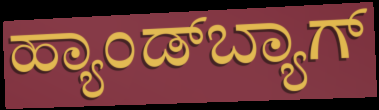
ಹ್ಯಾಂಡ್‌ಬ್ಯಾಗ್